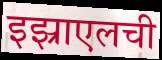
इझ्राएलची